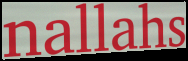
nallahs